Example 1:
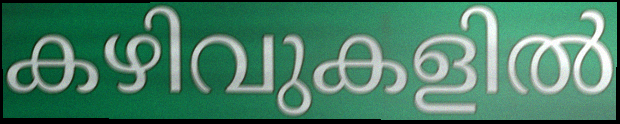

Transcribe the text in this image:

കഴിവുകളിൽ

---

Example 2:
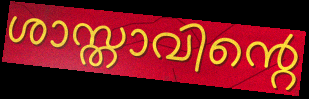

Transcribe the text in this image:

ശാസ്താവിന്റെ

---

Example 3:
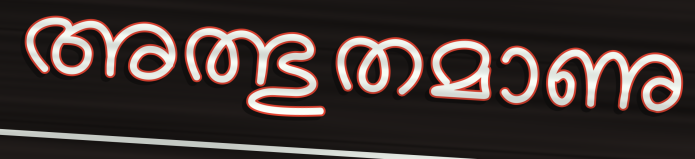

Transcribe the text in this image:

അത്ഭുതമാണു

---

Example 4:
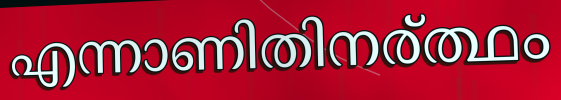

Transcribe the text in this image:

എന്നാണിതിനര്ത്ഥം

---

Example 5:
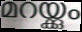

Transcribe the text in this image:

മറയ്ക്കും